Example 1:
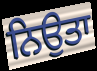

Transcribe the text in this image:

ਨਿਉਤਾ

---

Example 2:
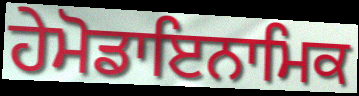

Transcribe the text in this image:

ਹੇਮੋਡਾਇਨਾਮਿਕ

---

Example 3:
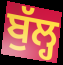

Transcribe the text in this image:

ਬੁੱਲ੍ਹ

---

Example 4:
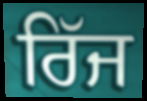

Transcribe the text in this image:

ਰਿੱਜ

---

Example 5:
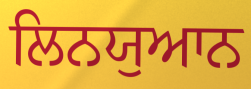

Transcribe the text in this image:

ਲਿਨਯੁਆਨ